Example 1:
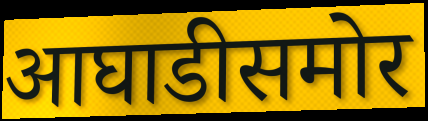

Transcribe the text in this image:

आघाडीसमोर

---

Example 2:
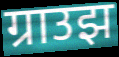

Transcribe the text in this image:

ग्राउझ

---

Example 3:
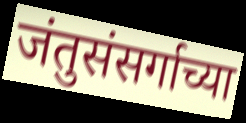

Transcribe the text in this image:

जंतुसंसर्गाच्या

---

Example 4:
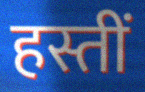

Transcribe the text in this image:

हस्तीं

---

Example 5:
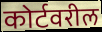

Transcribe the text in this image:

कोर्टवरील